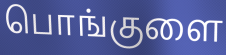
பொங்குளை